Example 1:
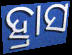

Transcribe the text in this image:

ହ୍ରାସ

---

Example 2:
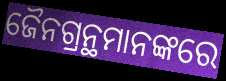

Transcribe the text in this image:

ଜୈନଗ୍ରନ୍ଥମାନଙ୍କରେ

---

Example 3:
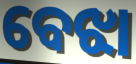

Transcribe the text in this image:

ବେଝା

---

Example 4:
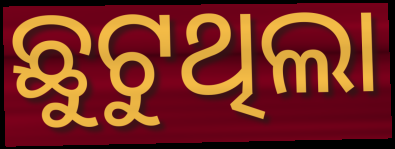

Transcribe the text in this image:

ଛୁଟୁଥିଲା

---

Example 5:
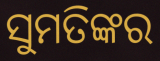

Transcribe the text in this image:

ସୁମତିଙ୍କର